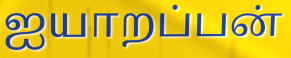
ஐயாறப்பன்